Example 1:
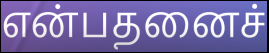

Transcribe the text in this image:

என்பதனைச்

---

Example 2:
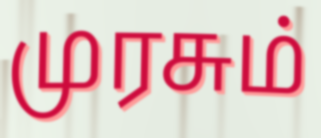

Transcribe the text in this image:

முரசும்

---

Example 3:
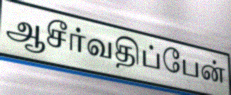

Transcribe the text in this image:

ஆசீர்வதிப்பேன்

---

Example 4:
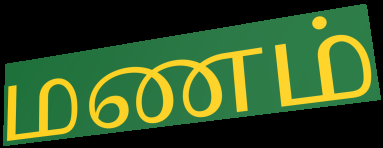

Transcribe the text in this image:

மணம்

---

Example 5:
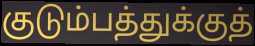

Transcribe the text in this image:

குடும்பத்துக்குத்